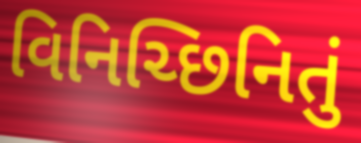
વિનિચ્છિનિતું